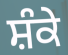
ਸ਼ੰਕੇ